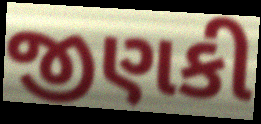
જીણકી